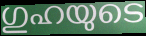
ഗുഹയുടെ